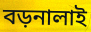
বড়নালাই